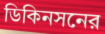
ডিকিনসনের